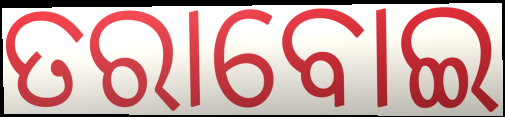
ତରାବୋଇ